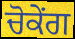
ਚੋਕੇਂਗ